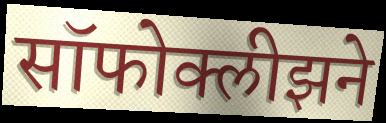
सॉफोक्लीझने